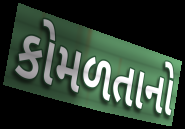
કોમળતાનો